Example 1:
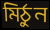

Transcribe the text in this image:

মিঠুন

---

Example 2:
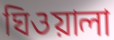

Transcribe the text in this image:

ঘিওয়ালা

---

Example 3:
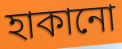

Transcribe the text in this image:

হাকানো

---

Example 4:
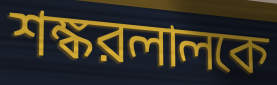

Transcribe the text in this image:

শঙ্করলালকে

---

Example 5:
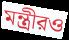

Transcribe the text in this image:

মন্ত্রীরও